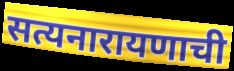
सत्यनारायणाची